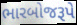
ભારબોજરૂપે